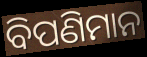
ବିପଣିମାନ